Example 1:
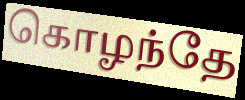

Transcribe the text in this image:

கொழந்தே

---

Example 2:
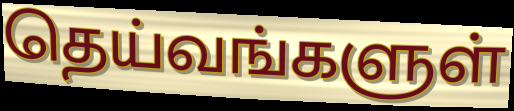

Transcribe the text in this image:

தெய்வங்களுள்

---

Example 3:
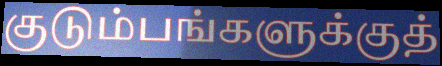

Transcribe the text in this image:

குடும்பங்களுக்குத்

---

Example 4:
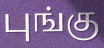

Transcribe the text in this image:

புங்கு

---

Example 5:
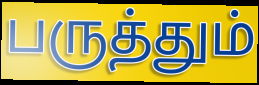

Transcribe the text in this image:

பருத்தும்